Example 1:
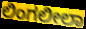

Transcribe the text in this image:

ಲಿಂಗಲೀಲಾ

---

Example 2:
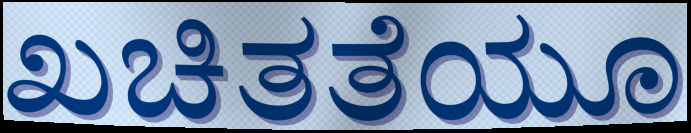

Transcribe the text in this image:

ಖಚಿತತೆಯೂ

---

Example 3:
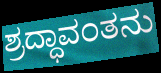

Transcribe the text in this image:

ಶ್ರದ್ಧಾವಂತನು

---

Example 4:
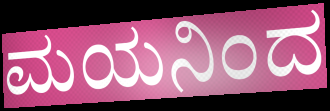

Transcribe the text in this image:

ಮಯನಿಂದ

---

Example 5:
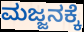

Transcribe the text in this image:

ಮಜ್ಜನಕ್ಕೆ